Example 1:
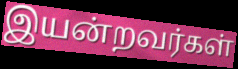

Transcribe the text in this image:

இயன்றவர்கள்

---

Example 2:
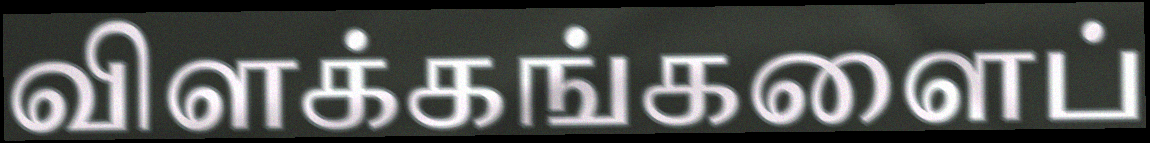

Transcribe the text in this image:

விளக்கங்களைப்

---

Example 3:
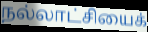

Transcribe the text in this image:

நல்லாட்சியைக்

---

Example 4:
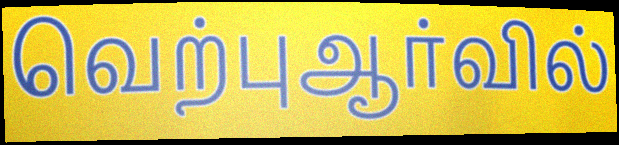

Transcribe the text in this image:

வெற்புஆர்வில்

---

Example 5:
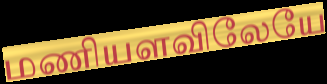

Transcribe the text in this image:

மணியளவிலேயே